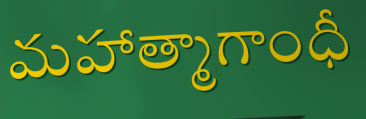
మహాత్మాగాంధీ